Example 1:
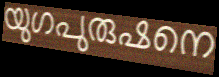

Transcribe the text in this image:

യുഗപുരുഷനെ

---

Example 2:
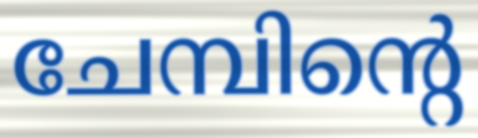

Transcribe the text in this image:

ചേമ്പിന്റെ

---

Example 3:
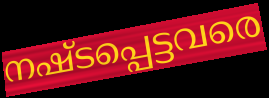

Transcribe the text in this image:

നഷ്ടപ്പെട്ടവരെ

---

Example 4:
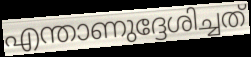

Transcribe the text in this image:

എന്താണുദ്ദേശിച്ചത്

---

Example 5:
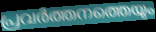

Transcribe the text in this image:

പ്രവർത്തനത്തെയും